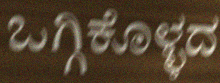
ಒಗ್ಗಿಕೊಳ್ಳದ